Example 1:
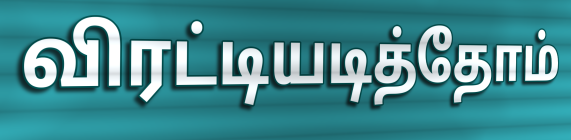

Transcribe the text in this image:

விரட்டியடித்தோம்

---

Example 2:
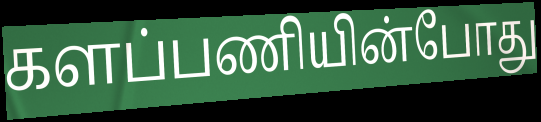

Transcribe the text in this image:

களப்பணியின்போது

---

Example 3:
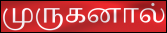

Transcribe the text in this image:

முருகனால்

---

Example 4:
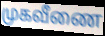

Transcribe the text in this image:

முகவீணை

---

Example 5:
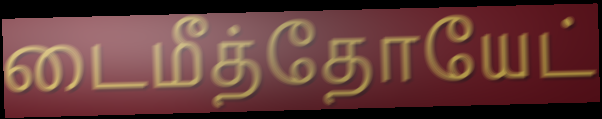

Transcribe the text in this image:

டைமீத்தோயேட்